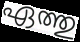
ഏത്തു